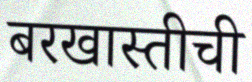
बरखास्तीची